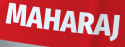
MAHARAJ